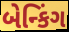
બેન્કિંગ